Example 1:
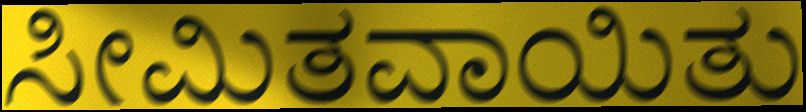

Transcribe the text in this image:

ಸೀಮಿತವಾಯಿತು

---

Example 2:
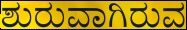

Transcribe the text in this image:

ಶುರುವಾಗಿರುವ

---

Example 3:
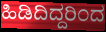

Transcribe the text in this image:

ಹಿಡಿದಿದ್ದರಿಂದ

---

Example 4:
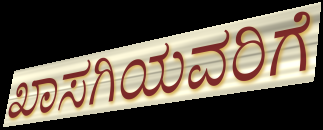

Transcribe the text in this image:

ಖಾಸಗಿಯವರಿಗೆ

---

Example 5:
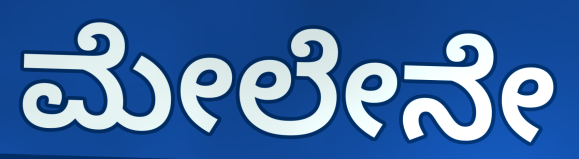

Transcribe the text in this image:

ಮೇಲೇನೇ